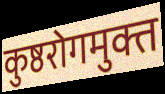
कुष्ठरोगमुक्त